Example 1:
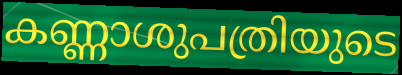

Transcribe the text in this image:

കണ്ണാശുപത്രിയുടെ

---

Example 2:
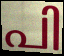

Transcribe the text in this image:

പി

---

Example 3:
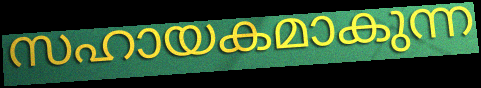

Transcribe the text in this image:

സഹായകമാകുന്ന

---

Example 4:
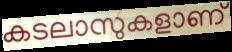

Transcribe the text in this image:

കടലാസുകളാണ്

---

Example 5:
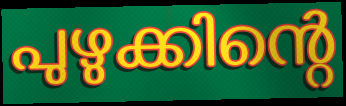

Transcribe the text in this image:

പുഴുക്കിന്റെ